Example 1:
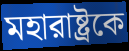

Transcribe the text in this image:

মহারাষ্ট্রকে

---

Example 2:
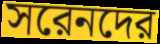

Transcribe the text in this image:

সরেনদের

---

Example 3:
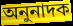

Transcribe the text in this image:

অনুনাদক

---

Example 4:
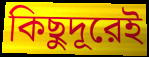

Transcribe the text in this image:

কিছুদূরেই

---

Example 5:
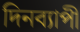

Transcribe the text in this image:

দিনব্যাপী